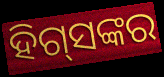
ହିଗ୍‌ସଙ୍କର